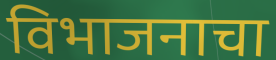
विभाजनाचा